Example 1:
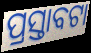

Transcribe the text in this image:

ପ୍ରସ୍ତାବଟା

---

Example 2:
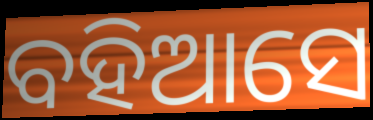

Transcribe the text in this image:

ବହିଆସେ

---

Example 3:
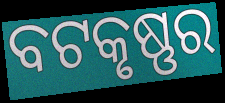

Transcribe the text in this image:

ବଟକୃଷ୍ଣର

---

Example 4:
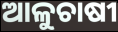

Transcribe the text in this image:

ଆଳୁଚାଷୀ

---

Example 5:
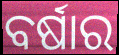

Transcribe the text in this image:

ବର୍ଷାର